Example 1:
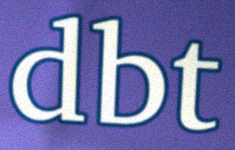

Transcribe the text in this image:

dbt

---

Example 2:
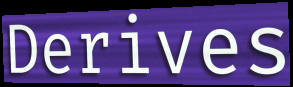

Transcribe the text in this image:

Derives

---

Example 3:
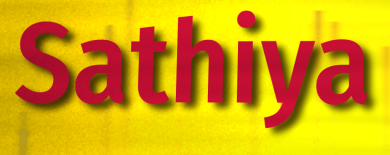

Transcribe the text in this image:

Sathiya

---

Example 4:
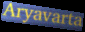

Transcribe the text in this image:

Aryavarta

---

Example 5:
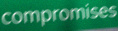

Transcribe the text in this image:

compromises